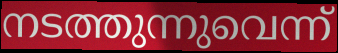
നടത്തുന്നുവെന്ന്